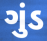
ગુંડ